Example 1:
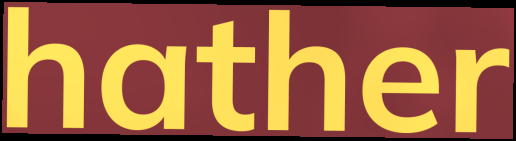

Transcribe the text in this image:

hather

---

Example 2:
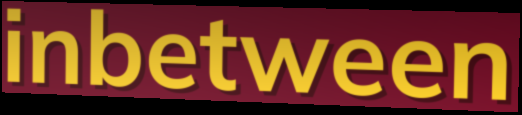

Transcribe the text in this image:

inbetween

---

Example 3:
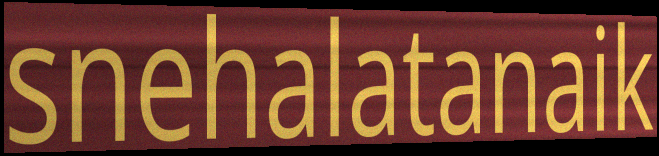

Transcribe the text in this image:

snehalatanaik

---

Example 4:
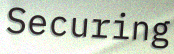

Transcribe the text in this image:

Securing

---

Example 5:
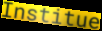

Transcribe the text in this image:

Institue